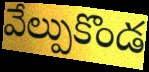
వేల్పుకొండ